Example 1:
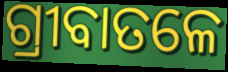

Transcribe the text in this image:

ଗ୍ରୀବାତଳେ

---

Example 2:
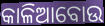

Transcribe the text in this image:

କାଳିଆବୋଉ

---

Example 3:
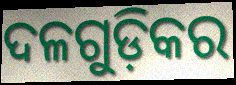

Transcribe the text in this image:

ଦଳଗୁଡ଼ିକର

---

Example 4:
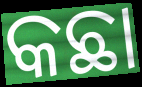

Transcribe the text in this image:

କଛା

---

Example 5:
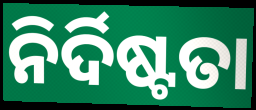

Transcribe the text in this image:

ନିର୍ଦିଷ୍ଟତା